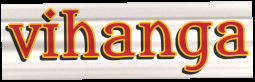
vihanga